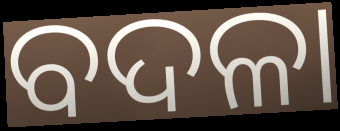
ବଦଳା